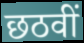
छठवीं